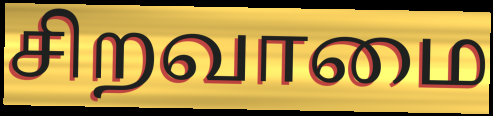
சிறவாமை